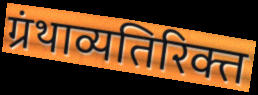
ग्रंथाव्यतिरिक्त